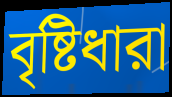
বৃষ্টিধারা